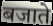
बजाते